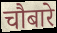
चौबारे